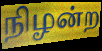
நிழன்ற